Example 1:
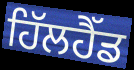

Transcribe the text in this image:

ਹਿੱਲਹੈੱਡ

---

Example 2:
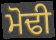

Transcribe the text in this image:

ਮੋਢੀ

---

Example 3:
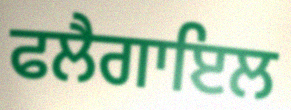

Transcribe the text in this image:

ਫਲੈਗਾਇਲ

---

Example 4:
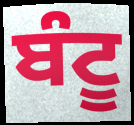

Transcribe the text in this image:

ਬੰਟੂ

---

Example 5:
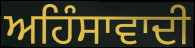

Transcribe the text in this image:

ਅਹਿੰਸਾਵਾਦੀ